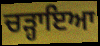
ਚੜ੍ਹਾਇਆ